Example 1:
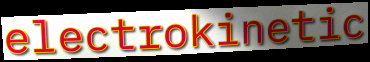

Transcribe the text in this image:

electrokinetic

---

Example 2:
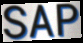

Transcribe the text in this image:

SAP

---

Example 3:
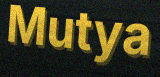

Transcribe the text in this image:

Mutya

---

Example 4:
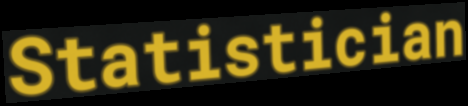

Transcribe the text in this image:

Statistician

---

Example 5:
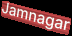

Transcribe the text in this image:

Jamnagar